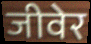
जीवेर